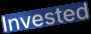
Invested